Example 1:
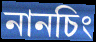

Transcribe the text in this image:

নানচিং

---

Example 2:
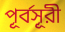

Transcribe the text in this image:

পূর্বসূরী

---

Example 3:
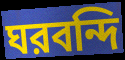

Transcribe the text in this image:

ঘরবন্দি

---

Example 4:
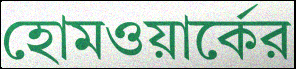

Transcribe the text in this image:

হোমওয়ার্কের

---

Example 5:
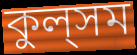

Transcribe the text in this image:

কুল্‌সম